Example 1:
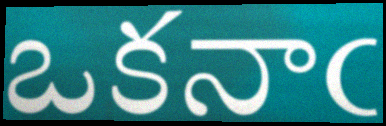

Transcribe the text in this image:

ఒకనాఁ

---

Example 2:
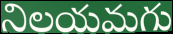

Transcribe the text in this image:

నిలయమగు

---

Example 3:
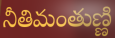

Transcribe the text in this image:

నీతిమంతుణ్ణి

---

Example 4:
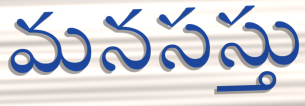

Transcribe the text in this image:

మనసస్తు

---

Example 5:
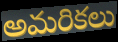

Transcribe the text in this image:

అమరికలు